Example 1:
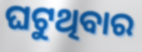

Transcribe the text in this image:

ଘଟୁଥିବାର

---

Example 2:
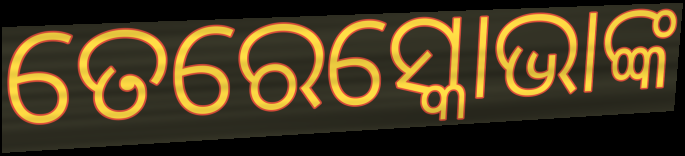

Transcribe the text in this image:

ତେରେସ୍କୋଭାଙ୍କ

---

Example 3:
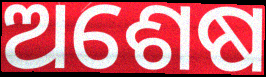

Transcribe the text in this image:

ଅଶେଷ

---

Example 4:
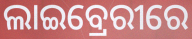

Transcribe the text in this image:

ଲାଇବ୍ରେରୀରେ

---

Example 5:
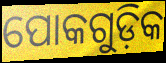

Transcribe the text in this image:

ପୋକଗୁଡ଼ିକ